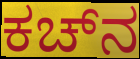
ಕಚ್‌ನ